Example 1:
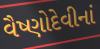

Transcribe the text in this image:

વૈષ્ણોદેવીનાં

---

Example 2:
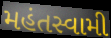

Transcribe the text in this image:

મહંતસ્વામી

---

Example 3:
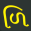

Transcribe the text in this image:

ળિ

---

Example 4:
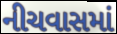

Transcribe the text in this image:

નીચવાસમાં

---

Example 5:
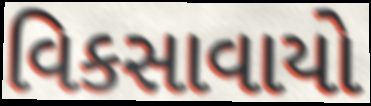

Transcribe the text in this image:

વિકસાવાયો